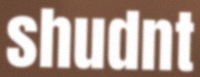
shudnt